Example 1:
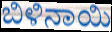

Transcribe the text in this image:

ಬಿಳಿನಾಯಿ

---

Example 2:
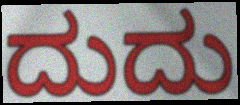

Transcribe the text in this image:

ದುದು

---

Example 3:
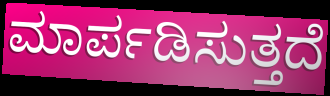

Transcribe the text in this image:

ಮಾರ್ಪಡಿಸುತ್ತದೆ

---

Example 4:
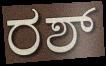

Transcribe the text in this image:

ರಶ್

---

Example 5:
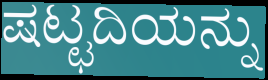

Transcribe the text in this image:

ಷಟ್ಟದಿಯನ್ನು